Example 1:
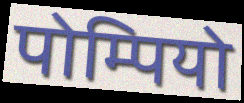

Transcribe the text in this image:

पोम्पियो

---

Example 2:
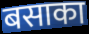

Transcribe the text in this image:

बसाका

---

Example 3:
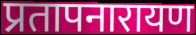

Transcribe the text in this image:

प्रतापनारायण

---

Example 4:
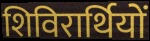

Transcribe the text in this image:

शिविरार्थियों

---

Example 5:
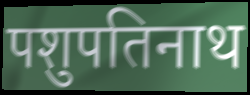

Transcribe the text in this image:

पशुपतिनाथ